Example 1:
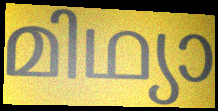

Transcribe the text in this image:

മിഥ്യാ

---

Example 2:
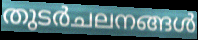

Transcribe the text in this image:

തുടർചലനങ്ങൾ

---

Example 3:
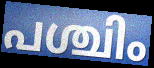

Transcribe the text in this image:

പശ്ചിം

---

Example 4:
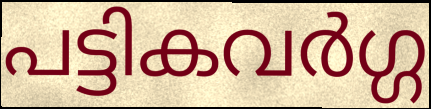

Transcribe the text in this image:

പട്ടികവർഗ്ഗ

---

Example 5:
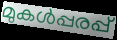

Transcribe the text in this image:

മുകൾപ്പരപ്പ്